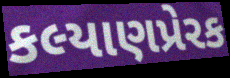
કલ્યાણપ્રેરક